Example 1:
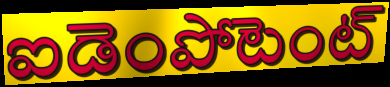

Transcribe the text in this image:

ఐడెంపోటెంట్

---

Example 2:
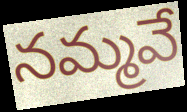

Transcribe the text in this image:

నమ్మవే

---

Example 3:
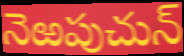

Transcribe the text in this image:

నెఱపుచున్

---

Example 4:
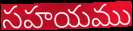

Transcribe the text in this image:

సహయము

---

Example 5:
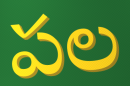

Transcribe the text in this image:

పల